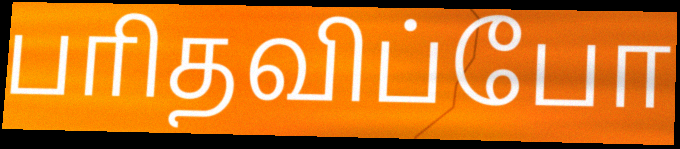
பரிதவிப்போ